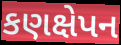
કણક્ષેપન